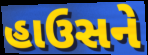
હાઉસને